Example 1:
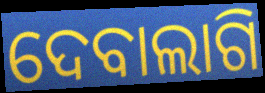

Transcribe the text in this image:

ଦେବାଲାଗି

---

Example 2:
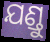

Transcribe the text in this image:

ଯଣ୍ଡୁ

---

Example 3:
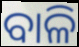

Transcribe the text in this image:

ବାଳି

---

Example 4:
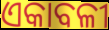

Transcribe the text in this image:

ଏକାବଳୀ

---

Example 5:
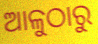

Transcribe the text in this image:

ଆଳୁଠାରୁ